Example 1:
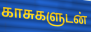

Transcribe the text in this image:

காசுகளுடன்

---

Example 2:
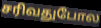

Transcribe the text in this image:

சரிவதுபோல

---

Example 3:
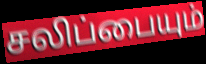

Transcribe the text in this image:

சலிப்பையும்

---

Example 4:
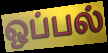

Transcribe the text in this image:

ஒப்பல்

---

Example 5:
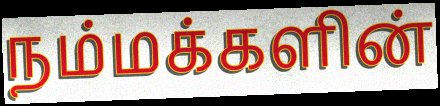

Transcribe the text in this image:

நம்மக்களின்